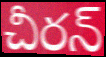
చీరన్